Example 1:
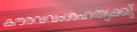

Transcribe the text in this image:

കൗരവവംശഹത്യക്കു്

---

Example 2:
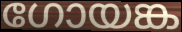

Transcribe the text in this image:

ഗോയങ്ക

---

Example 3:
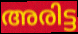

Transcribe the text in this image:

അരിട്ട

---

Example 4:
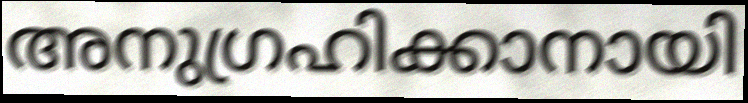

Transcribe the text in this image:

അനുഗ്രഹിക്കാനായി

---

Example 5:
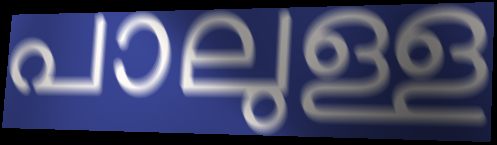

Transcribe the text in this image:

പാലുള്ള